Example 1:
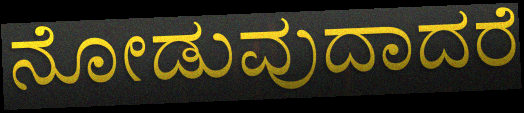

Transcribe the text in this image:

ನೋಡುವುದಾದರೆ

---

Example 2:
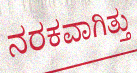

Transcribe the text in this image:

ನರಕವಾಗಿತ್ತು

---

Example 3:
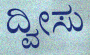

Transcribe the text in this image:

ದ್ವೀಸು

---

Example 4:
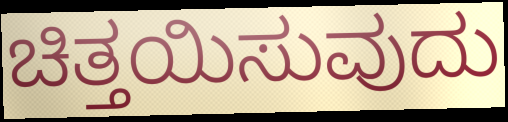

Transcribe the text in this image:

ಚಿತ್ತಯಿಸುವುದು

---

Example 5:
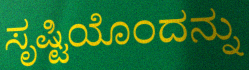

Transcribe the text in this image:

ಸೃಷ್ಟಿಯೊಂದನ್ನು